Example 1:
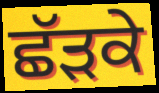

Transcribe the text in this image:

ਛੱੜਕੇ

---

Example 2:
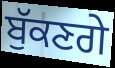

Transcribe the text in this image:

ਬੁੱਕਣਗੇ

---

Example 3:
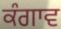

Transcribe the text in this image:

ਕੰਗਾਵ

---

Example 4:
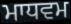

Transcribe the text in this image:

ਮਾਧਵਮ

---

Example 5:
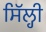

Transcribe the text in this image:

ਸਿੱਲ੍ਹੀ